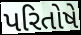
પરિતોષે